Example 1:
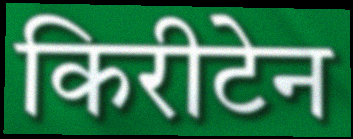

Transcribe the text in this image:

किरीटेन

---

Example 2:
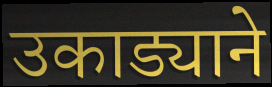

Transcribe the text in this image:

उकाड्याने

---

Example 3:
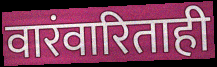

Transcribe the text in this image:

वारंवारिताही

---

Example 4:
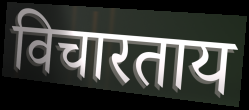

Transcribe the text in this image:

विचारताय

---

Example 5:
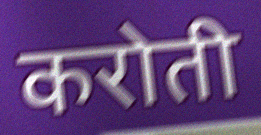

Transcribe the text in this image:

करोती